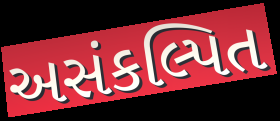
અસંકલ્પિત